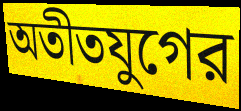
অতীতযুগের